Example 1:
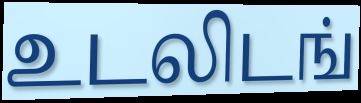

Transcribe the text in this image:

உடலிடங்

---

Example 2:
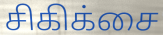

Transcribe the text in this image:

சிகிக்சை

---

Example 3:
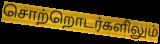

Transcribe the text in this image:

சொற்றொடர்களிலும்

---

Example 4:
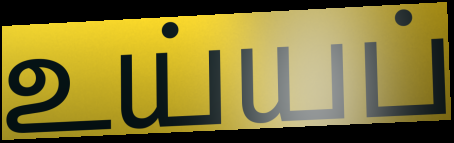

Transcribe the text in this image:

உய்யப்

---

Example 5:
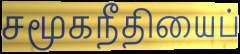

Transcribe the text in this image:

சமூகநீதியைப்